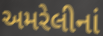
અમરેલીનાં